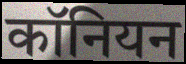
कॉनियन